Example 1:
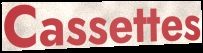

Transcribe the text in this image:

Cassettes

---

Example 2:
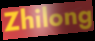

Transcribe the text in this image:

Zhilong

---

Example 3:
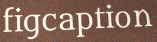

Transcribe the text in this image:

figcaption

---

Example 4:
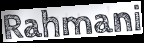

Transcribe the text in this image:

Rahmani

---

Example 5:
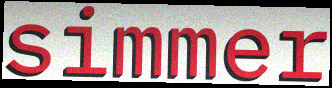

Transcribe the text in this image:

simmer